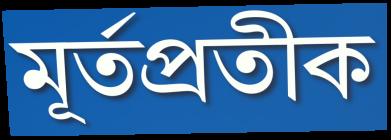
মূর্তপ্রতীক